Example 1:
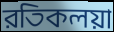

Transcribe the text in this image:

রতিকলয়া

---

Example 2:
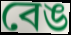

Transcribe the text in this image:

বেঙ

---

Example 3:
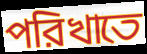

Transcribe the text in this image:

পরিখাতে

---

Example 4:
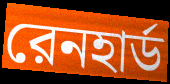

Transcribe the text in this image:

রেনহার্ড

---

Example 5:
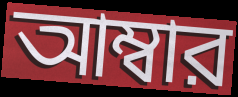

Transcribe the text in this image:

আম্বার